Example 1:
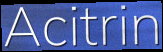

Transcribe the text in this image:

Acitrin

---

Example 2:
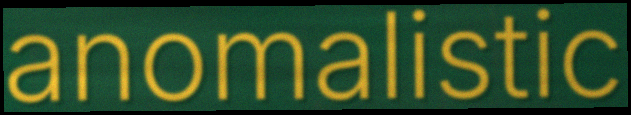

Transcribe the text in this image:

anomalistic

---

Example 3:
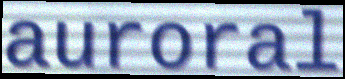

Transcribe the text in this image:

auroral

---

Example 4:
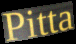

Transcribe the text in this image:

Pitta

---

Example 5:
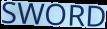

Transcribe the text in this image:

SWORD